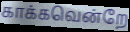
காக்கவென்றே